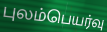
புலம்பெயர்வு